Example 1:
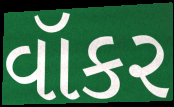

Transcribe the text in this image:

વૉકર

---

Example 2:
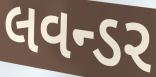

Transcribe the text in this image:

લવન્ડર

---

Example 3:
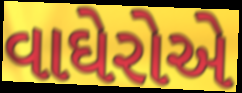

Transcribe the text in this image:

વાઘેરોએ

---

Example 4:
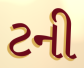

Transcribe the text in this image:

ટની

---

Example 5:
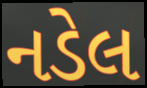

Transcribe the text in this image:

નડેલ